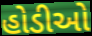
હોડીઓ